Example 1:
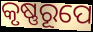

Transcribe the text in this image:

କୃଷ୍ଣରୂପେ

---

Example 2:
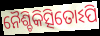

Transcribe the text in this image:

ନୈଶ୍ଚିକିତ୍ସିତୋଽପି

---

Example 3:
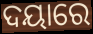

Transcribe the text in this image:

ଦୟାରେ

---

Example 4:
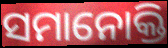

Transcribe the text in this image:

ସମାନୋକ୍ତି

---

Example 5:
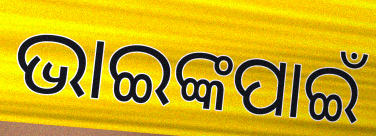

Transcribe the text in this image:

ଭାଇଙ୍କପାଇଁ